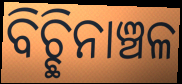
ବିଚ୍ଛିନାଞ୍ଚଳ